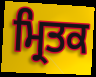
ਮ੍ਰਿਤਕ